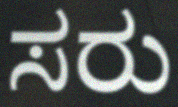
ಸರು